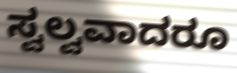
ಸ್ವಲ್ವವಾದರೂ